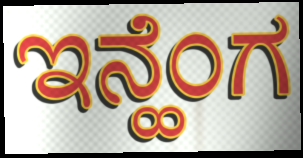
ಇನ್ಹೆಂಗ